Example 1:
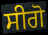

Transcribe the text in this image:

ਸੀਗੋ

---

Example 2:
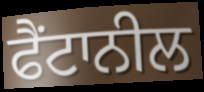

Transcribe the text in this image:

ਫੈਂਟਾਨੀਲ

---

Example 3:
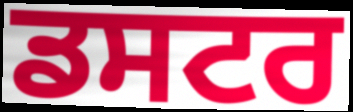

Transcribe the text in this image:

ਡਸਟਰ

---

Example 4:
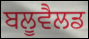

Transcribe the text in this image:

ਬਲੂਵੈਲਡ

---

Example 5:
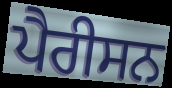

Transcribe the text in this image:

ਪੈਰੀਸਨ